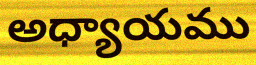
అధ్యాయము